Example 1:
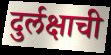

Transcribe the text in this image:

दुर्लक्षाची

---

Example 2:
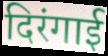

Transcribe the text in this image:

दिरंगाई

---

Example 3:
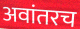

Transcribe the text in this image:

अवांतरच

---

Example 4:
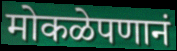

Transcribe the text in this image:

मोकळेपणानं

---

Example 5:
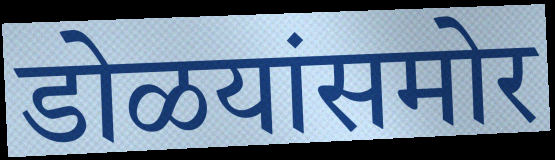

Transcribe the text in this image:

डोळयांसमोर